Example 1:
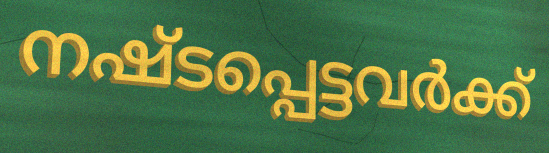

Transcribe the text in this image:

നഷ്ടപ്പെട്ടവർക്ക്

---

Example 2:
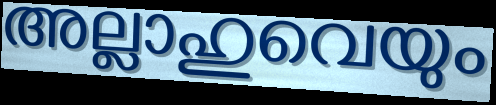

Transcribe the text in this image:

അല്ലാഹുവെയും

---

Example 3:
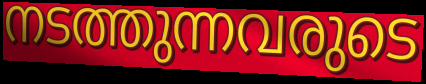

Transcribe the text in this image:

നടത്തുന്നവരുടെ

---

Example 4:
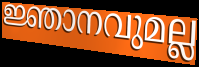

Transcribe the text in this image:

ജ്ഞാനവുമല്ല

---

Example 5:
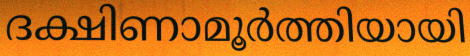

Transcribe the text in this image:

ദക്ഷിണാമൂർത്തിയായി